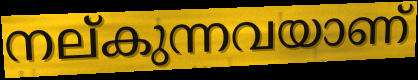
നല്കുന്നവയാണ്